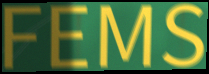
FEMS